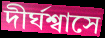
দীর্ঘশ্বাসে